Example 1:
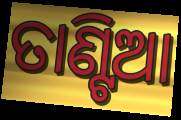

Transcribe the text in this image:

ତାଣ୍ଟିଆ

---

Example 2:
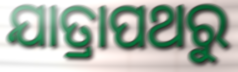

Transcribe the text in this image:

ଯାତ୍ରାପଥରୁ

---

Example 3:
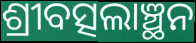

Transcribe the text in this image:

ଶ୍ରୀବତ୍ସଲାଞ୍ଛନ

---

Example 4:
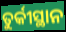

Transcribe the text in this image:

ତୁର୍କୀସ୍ଥାନ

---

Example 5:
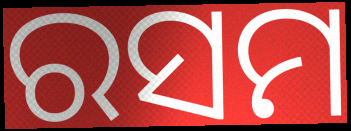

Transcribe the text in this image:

ରସମ